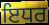
ਇਧਰ